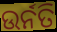
ଉର୍ନତି